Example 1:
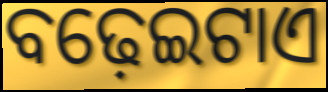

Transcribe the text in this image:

ବଢ଼େଇଟାଏ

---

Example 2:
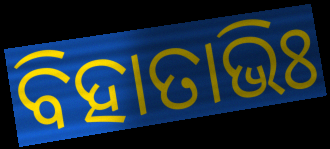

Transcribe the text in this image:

ବିହାତାଭିଃ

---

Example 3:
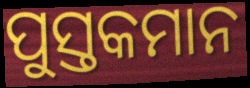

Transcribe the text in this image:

ପୁସ୍ତକମାନ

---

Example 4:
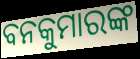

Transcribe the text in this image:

ବନକୁମାରଙ୍କ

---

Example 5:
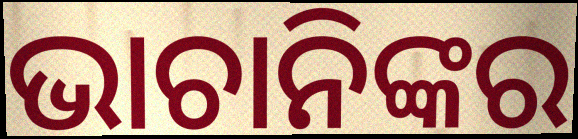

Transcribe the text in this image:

ଭାଚାନିଙ୍କର